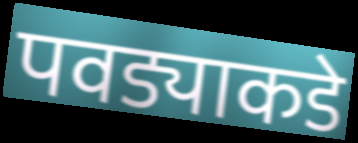
पवड्याकडे